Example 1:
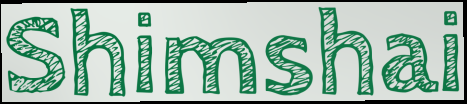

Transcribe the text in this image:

Shimshai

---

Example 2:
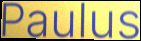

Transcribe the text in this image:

Paulus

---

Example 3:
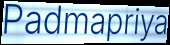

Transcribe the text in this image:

Padmapriya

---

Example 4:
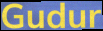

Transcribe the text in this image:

Gudur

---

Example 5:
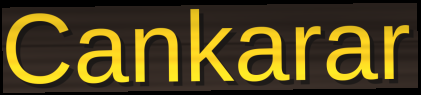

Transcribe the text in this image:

Cankarar